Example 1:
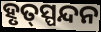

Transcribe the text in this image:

ହୃତ୍‌ସ୍ପନ୍ଦନ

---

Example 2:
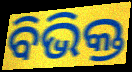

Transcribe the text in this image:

ବିଭିକ୍ତ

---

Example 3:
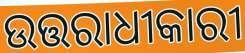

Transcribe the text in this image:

ଉତ୍ତରାଧୀକାରୀ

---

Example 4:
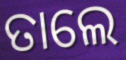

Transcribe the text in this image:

ତାଲେ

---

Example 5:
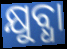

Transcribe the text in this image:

କ୍ଷୁବ୍ଧା